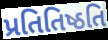
પ્રતિતિષ્ઠતિ